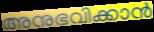
അനുഭവിക്കാൻ